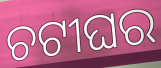
ଚଟୀଘର